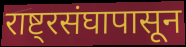
राष्ट्रसंघापासून